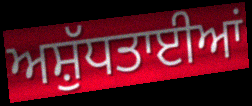
ਅਸ਼ੁੱਧਤਾਈਆਂ